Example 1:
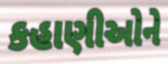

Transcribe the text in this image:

કહાણીઓને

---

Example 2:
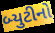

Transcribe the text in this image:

બ્યુટીનો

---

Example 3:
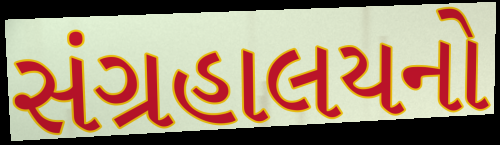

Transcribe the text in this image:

સંગ્રહાલયનો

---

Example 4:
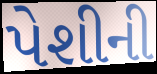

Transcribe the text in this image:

પેશીની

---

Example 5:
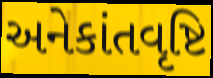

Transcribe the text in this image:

અનેકાંતવૃષ્ટિ